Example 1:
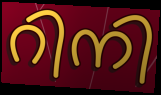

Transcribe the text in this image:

റിനി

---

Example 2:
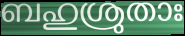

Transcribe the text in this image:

ബഹുശ്രുതാഃ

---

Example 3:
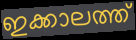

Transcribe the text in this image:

ഇക്കാലത്ത്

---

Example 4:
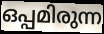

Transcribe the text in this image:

ഒപ്പമിരുന്ന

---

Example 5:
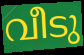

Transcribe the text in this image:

വീടു